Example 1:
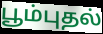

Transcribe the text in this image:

பூம்புதல்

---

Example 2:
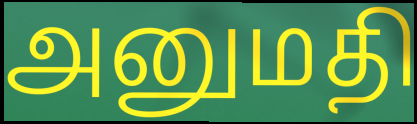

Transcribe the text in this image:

அனுமதி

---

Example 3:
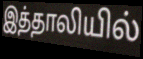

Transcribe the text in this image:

இத்தாலியில்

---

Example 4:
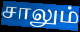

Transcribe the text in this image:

சாலும்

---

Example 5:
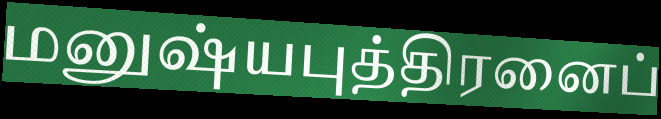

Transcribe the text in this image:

மனுஷ்யபுத்திரனைப்